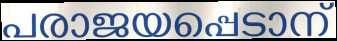
പരാജയപ്പെടാന്